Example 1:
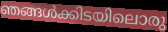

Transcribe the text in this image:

ഞങ്ങൾക്കിടയിലൊരു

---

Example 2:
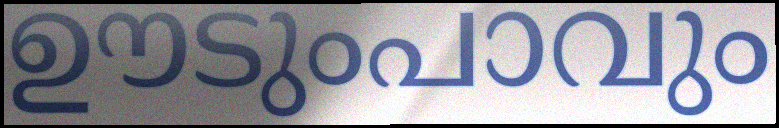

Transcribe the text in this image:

ഊടുംപാവും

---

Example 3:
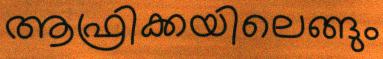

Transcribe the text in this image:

ആഫ്രിക്കയിലെങ്ങും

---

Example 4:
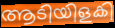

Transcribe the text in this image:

ആടിയിളകി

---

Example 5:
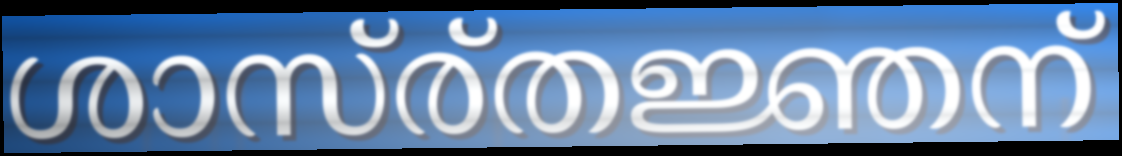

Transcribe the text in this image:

ശാസ്ര്തജ്ഞന്